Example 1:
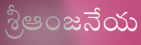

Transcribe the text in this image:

శ్రీఆంజనేయ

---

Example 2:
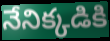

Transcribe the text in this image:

నేనిక్కడికి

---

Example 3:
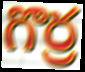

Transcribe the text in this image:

గొర్ర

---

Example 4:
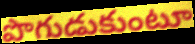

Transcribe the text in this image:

పొగుడుకుంటూ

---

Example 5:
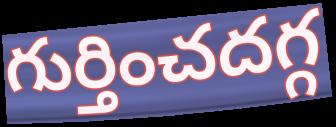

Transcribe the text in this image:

గుర్తించదగ్గ